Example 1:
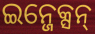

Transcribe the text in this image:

ଇନ୍ଜେକ୍ସନ୍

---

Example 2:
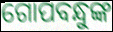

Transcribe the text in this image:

ଗୋପବନ୍ଧୁଙ୍କ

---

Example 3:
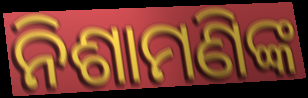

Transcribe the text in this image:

ନିଶାମଣିଙ୍କ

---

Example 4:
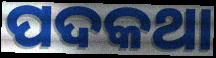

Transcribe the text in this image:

ପଦକଥା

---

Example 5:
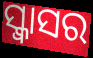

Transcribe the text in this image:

ସ୍କ୍ବାସର